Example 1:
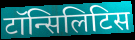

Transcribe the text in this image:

टॉन्सिलिटिस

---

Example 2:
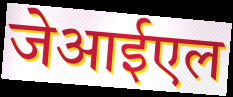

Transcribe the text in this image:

जेआईएल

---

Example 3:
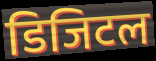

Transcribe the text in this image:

डिजिटल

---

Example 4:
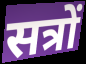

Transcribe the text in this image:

सत्रों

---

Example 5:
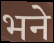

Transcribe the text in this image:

भने